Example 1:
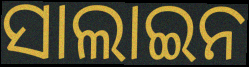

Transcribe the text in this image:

ସାଲାଇନ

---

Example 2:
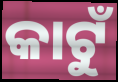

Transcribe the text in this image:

କାଟୁଁ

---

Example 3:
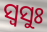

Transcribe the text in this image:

ସ୍ଵସୁଃ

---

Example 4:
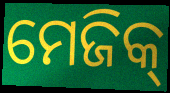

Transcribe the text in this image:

ମେଜିକ୍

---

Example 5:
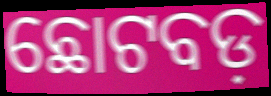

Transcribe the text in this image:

ଛୋଟବଡ଼